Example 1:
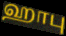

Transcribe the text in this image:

ஹாபு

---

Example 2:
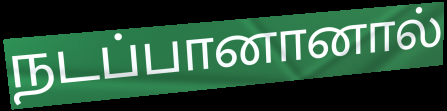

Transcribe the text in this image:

நடப்பானானால்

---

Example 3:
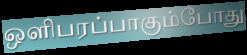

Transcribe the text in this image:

ஒளிபரப்பாகும்போது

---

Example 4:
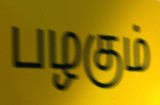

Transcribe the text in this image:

பழகும்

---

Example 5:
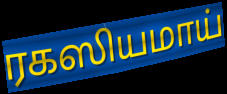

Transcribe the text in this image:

ரகஸியமாய்